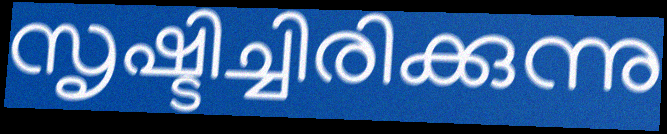
സൃഷ്ടിച്ചിരിക്കുന്നു